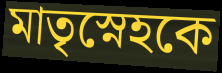
মাতৃস্নেহকে